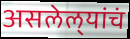
असलेल्यांचं